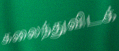
கலைந்துவிடக்